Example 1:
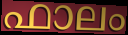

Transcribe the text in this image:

ഫാലം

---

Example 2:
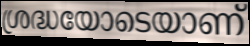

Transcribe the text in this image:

ശ്രദ്ധയോടെയാണ്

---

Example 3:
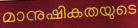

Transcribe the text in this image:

മാനുഷികതയുടെ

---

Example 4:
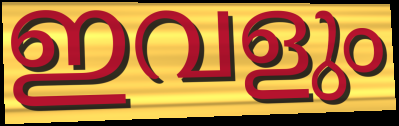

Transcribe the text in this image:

ഇവളും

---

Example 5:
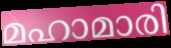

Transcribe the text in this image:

മഹാമാരി